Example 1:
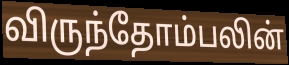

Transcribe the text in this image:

விருந்தோம்பலின்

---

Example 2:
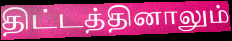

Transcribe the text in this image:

திட்டத்தினாலும்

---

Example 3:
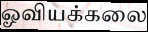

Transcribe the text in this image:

ஓவியக்கலை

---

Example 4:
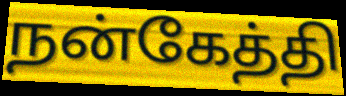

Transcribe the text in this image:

நன்கேத்தி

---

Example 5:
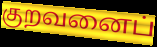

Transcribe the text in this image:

குறவனைப்